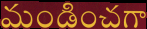
మండించగా